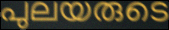
പുലയരുടെ